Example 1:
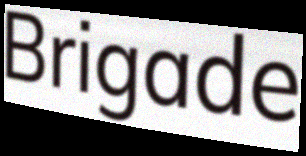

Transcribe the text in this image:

Brigade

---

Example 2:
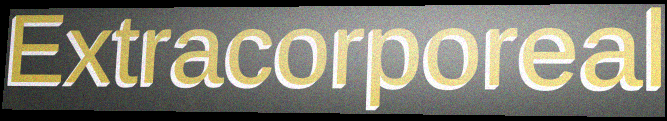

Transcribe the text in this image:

Extracorporeal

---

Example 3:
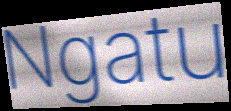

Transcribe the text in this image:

Ngatu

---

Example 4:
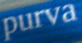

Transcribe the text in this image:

purva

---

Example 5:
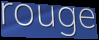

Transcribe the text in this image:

rouge